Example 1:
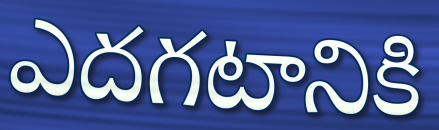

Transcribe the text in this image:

ఎదగటానికి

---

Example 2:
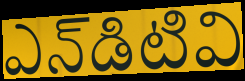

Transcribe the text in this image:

ఎన్‌డిటివి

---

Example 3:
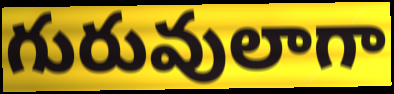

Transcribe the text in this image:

గురువులాగా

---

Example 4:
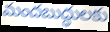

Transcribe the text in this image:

మందబుద్ధులకు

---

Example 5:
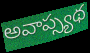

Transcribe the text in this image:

అవాప్స్యథ